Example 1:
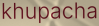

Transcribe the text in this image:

khupacha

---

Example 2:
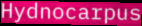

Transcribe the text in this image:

Hydnocarpus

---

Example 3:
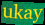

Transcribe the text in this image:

ukay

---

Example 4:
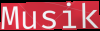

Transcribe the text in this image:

Musik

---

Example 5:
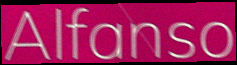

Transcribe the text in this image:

Alfanso